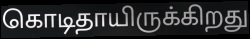
கொடிதாயிருக்கிறது